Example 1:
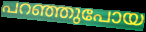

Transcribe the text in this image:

പറഞ്ഞുപോയ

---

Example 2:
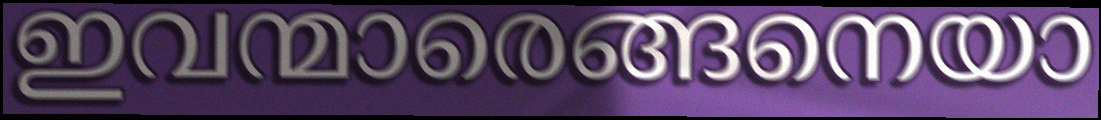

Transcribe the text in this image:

ഇവന്മാരെങ്ങനെയാ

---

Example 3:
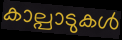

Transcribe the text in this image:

കാല്പാടുകൾ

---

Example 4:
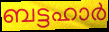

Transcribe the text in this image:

ബട്ടഹാർ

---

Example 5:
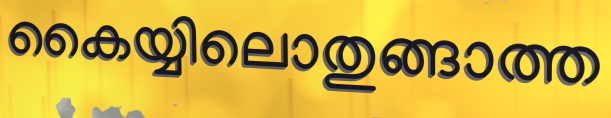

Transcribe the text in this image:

കൈയ്യിലൊതുങ്ങാത്ത